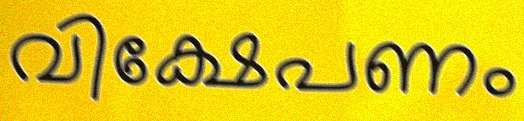
വിക്ഷേപണം